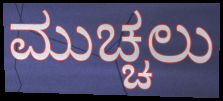
ಮುಚ್ಚಲು